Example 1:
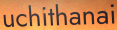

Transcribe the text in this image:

uchithanai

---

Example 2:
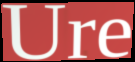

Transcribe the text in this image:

Ure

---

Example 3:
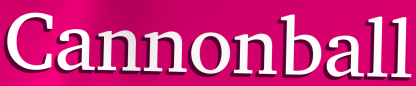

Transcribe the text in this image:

Cannonball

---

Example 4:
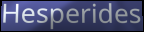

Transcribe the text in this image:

Hesperides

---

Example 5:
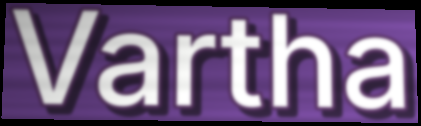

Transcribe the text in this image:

Vartha